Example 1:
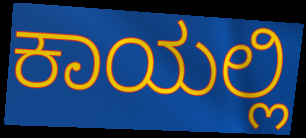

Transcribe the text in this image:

ಕಾಯಲ್ಲಿ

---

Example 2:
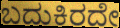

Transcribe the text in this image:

ಬದುಕಿರದೇ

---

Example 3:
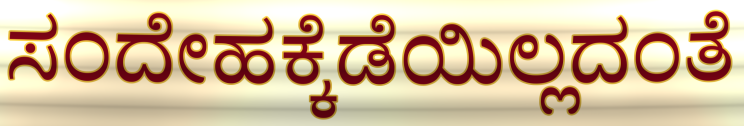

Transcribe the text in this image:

ಸಂದೇಹಕ್ಕೆಡೆಯಿಲ್ಲದಂತೆ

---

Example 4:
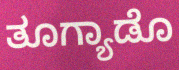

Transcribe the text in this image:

ತೂಗ್ಯಾಡೊ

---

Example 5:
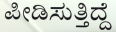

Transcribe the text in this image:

ಪೀಡಿಸುತ್ತಿದ್ದೆ